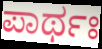
ಪಾರ್ಥಃ